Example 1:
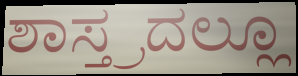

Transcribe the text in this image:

ಶಾಸ್ತ್ರದಲ್ಲೂ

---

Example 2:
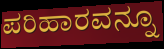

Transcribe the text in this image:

ಪರಿಹಾರವನ್ನೂ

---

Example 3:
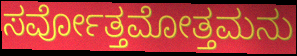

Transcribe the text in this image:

ಸರ್ವೋತ್ತಮೋತ್ತಮನು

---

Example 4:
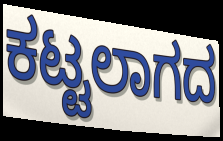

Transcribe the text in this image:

ಕಟ್ಟಲಾಗದ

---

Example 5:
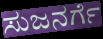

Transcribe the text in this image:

ಸುಜನರ್ಗೆ